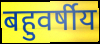
बहुवर्षीय